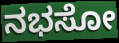
ನಭಸೋ